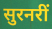
सुरनरीं